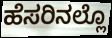
ಹೆಸರಿನಲ್ಲೊ